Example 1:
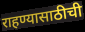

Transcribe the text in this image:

राहण्यासाठीची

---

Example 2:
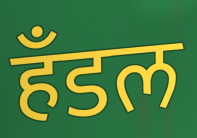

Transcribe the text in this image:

हॅंडल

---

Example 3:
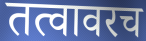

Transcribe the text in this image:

तत्वावरच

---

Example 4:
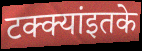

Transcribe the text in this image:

टक्क्यांइतके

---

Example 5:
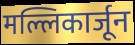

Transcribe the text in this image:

मल्लिकार्जून